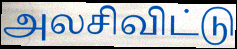
அலசிவிட்டு